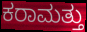
ಕರಾಮತ್ತು